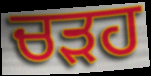
ਚੜਹ